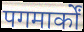
पगमार्कों